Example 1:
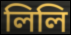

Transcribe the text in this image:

লিলি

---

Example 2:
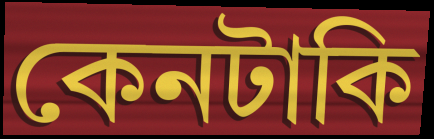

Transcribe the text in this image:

কেনটাকি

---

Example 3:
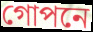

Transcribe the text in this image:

গোপনে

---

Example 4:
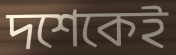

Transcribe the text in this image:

দশেকেই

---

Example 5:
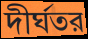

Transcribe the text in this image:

দীর্ঘতর